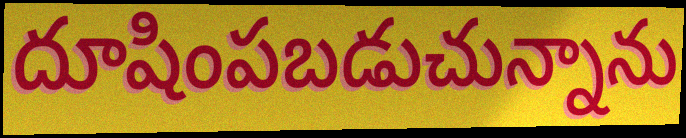
దూషింపబడుచున్నాను